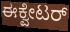
ಈಕ್ವೇಟರ್